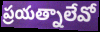
ప్రయత్నాలేవో